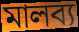
মালব্য